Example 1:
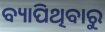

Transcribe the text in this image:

ବ୍ୟାପିଥିବାରୁ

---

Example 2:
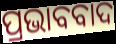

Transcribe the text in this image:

ପ୍ରଭାବବାଦ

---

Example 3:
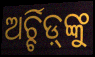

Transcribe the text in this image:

ଅର୍ଚ୍ଚିଡ଼୍‌ଙ୍କୁ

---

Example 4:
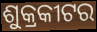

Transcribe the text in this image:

ଶୁକ୍ରକୀଟର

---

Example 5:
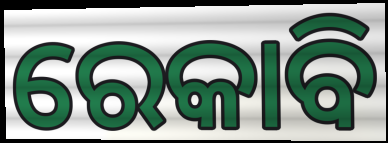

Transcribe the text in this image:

ରେକାବି